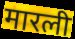
मारली